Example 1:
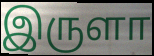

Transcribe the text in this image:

இருளா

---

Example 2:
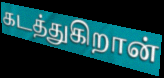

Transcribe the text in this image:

கடத்துகிறான்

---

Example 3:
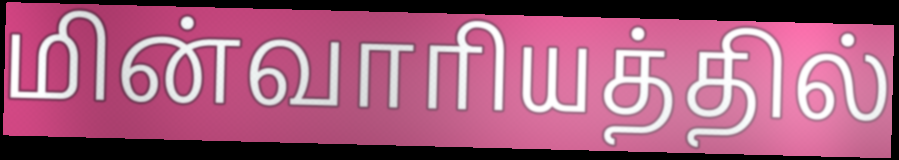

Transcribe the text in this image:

மின்வாரியத்தில்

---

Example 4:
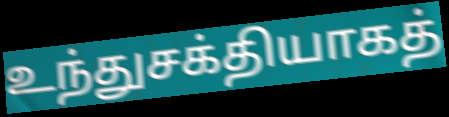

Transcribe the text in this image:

உந்துசக்தியாகத்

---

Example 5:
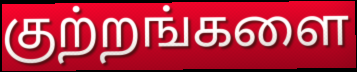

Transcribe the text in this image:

குற்றங்களை